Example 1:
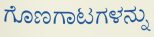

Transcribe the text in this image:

ಗೊಣಗಾಟಗಳನ್ನು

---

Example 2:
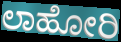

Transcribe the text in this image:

ಲಾಹೋರಿ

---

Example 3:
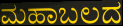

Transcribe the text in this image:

ಮಹಾಬಲದ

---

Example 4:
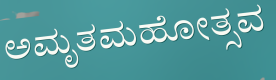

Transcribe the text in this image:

ಅಮೃತಮಹೋತ್ಸವ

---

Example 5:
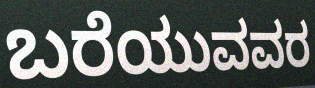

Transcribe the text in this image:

ಬರೆಯುವವರ